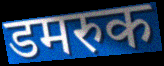
डमरुक